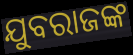
ଯୁବରାଜଙ୍କ